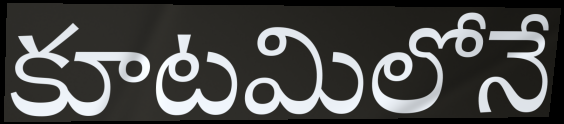
కూటమిలోనే